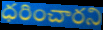
ధరించారని